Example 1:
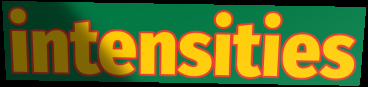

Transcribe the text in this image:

intensities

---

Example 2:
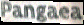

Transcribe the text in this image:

Pangaea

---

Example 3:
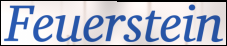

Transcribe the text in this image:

Feuerstein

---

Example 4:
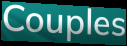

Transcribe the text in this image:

Couples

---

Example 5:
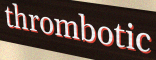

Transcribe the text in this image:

thrombotic